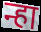
न्हा